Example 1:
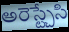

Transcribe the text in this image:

అరెస్ట్చేసి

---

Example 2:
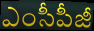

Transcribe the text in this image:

ఎంసీపీజీ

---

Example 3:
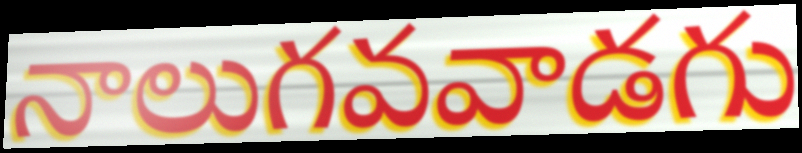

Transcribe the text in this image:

నాలుగవవాడగు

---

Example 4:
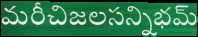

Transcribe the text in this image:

మరీచిజలసన్నిభమ్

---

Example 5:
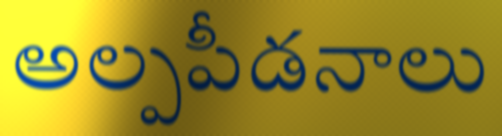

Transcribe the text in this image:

అల్పపీడనాలు